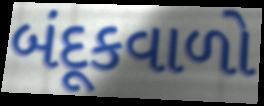
બંદૂકવાળો